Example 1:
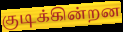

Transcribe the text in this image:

குடிக்கின்றன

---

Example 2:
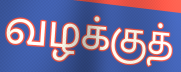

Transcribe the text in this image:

வழக்குத்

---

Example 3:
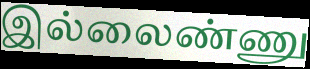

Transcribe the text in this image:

இல்லைண்ணு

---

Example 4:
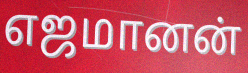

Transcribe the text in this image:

எஜமானன்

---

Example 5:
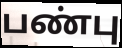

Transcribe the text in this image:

பண்பு